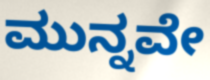
ಮುನ್ನವೇ